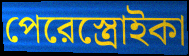
পেরেস্ত্রোইকা